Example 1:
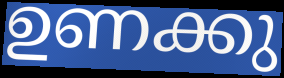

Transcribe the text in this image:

ഉണക്കു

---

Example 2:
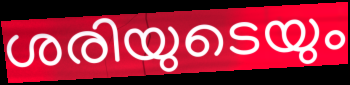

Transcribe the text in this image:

ശരിയുടെയും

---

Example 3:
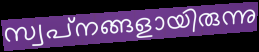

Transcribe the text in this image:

സ്വപ്‌നങ്ങളായിരുന്നു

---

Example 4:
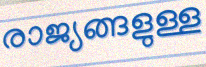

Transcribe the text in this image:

രാജ്യങ്ങളുള്ള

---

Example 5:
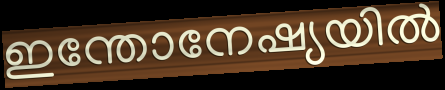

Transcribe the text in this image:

ഇന്തോനേഷ്യയിൽ